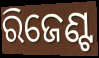
ରିଜେଣ୍ଟ